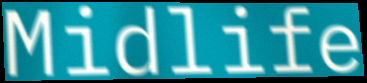
Midlife